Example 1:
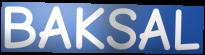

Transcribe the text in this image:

BAKSAL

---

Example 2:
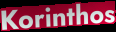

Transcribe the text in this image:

Korinthos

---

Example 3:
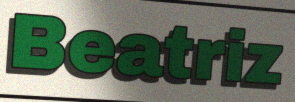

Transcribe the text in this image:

Beatriz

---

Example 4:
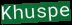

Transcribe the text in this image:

Khuspe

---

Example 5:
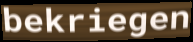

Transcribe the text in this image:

bekriegen